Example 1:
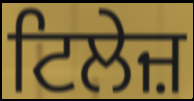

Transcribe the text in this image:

ਟਿਲੇਜ਼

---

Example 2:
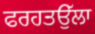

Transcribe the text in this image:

ਫਰਹਤਉੱਲਾ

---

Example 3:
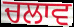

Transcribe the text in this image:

ਚਲਾਵ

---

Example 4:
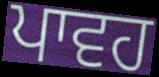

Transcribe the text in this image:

ਪਾਵਹ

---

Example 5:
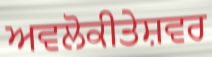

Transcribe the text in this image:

ਅਵਲੋਕੀਤੇਸ਼ਵਰ